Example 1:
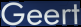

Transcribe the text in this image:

Geert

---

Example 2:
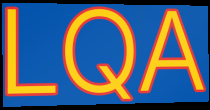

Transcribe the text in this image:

LQA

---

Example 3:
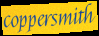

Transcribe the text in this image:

coppersmith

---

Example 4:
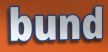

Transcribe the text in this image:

bund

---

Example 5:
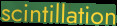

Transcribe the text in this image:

scintillation